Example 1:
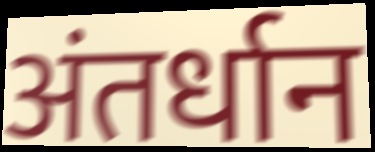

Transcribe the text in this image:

अंतर्धान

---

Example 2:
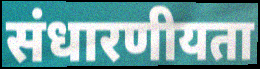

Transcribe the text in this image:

संधारणीयता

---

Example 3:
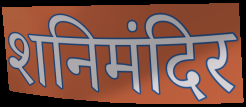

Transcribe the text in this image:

शनिमंदिर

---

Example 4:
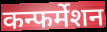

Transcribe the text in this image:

कन्फर्मेशन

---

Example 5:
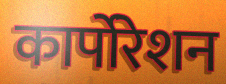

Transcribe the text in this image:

कार्पोरेशन